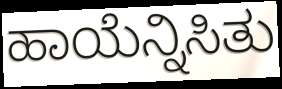
ಹಾಯೆನ್ನಿಸಿತು